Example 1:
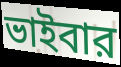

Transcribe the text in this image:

ভাইবার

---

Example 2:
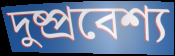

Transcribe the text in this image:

দুষ্প্রবেশ্য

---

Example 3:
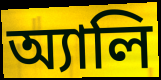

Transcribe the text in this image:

অ্যালি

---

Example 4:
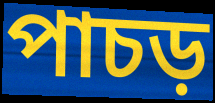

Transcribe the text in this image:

পাচড়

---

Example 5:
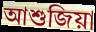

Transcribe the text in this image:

আশুজিয়া